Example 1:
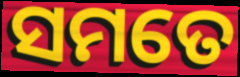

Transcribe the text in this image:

ସମତେ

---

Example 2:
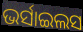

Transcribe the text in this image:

ଭର୍ସାଇଲସ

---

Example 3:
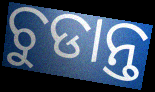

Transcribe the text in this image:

ଚୁଡାନ୍ତ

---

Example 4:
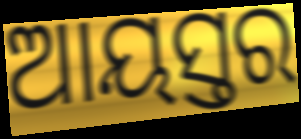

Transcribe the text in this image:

ଆୟସ୍ତର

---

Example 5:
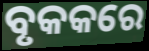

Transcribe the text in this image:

ବୃକକରେ